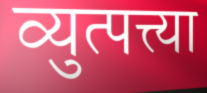
व्युत्पत्त्या